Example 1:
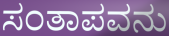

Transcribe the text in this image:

ಸಂತಾಪವನು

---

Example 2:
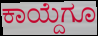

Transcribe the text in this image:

ಕಾಯ್ದೆಗೂ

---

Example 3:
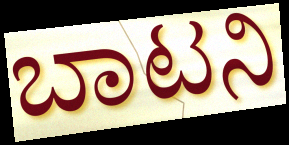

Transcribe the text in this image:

ಬಾಟನಿ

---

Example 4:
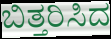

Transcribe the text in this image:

ಬಿತ್ತರಿಸಿದ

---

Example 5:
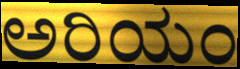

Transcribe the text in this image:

ಅರಿಯಂ